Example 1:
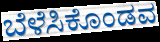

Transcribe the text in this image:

ಬೆಳೆಸಿಕೊಂಡವ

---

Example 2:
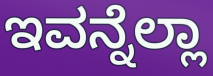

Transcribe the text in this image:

ಇವನ್ನೆಲ್ಲಾ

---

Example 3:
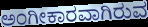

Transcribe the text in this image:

ಅಂಗೀಕಾರವಾಗಿರುವ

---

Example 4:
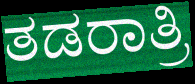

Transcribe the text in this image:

ತಡರಾತ್ರಿ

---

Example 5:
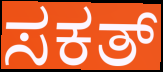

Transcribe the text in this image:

ಸಕತ್